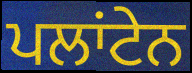
ਪਲਾਂਟੇਨ